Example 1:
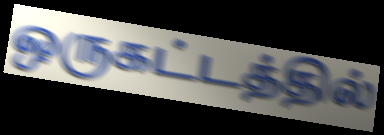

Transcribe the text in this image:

ஒருகட்டத்தில்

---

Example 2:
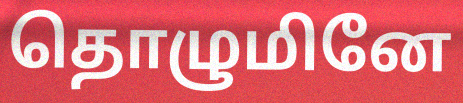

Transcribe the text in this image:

தொழுமினே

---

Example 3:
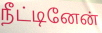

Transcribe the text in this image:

நீட்டினேன்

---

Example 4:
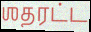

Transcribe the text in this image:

ஶதரட்ட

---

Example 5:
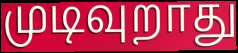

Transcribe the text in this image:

முடிவுறாது